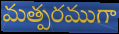
మత్పరముగా